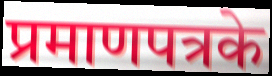
प्रमाणपत्रके